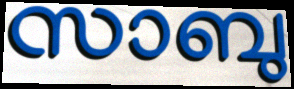
സാബു